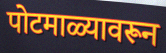
पोटमाळ्यावरून